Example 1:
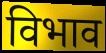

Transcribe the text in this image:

विभाव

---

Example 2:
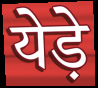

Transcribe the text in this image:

येड़े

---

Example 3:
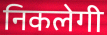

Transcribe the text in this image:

निकलेगी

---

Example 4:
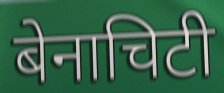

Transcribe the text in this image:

बेनाचिटी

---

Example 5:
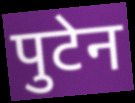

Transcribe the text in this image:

पुटेन